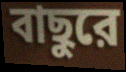
বাছুরে